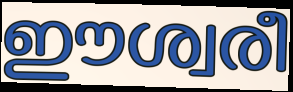
ഈശ്വരീ